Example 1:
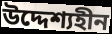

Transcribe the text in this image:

উদ্দেশ্যহীন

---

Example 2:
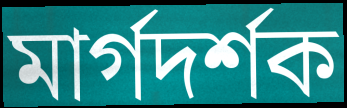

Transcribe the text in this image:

মার্গদর্শক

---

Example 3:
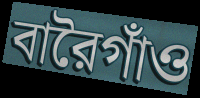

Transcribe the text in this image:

বারৈগাঁও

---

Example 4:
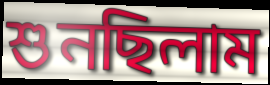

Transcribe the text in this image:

শুনছিলাম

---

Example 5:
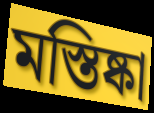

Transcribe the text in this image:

মস্তিষ্কা